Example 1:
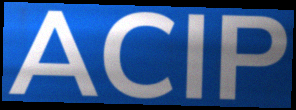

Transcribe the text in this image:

ACIP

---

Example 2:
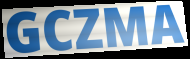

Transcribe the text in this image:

GCZMA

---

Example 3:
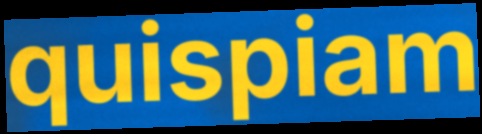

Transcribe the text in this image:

quispiam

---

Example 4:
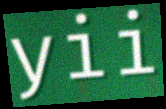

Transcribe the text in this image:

yii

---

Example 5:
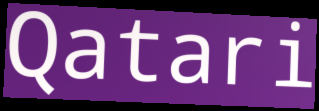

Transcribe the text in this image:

Qatari